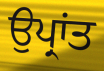
ਉਪ੍ਰਾਂਤ